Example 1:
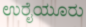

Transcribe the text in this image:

ಉರೈಯೂರು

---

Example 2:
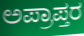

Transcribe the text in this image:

ಅಪ್ರಾಪ್ತರ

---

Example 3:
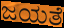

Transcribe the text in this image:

ಜಯತೆ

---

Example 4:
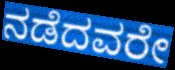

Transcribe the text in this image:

ನಡೆದವರೇ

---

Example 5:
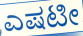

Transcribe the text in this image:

ಎಷಟೀ